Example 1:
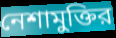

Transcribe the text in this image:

নেশামুক্তির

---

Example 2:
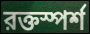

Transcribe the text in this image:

রক্তস্পর্শ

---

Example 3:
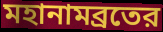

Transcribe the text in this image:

মহানামব্রতের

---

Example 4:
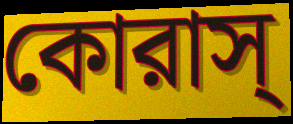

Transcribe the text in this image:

কোরাস্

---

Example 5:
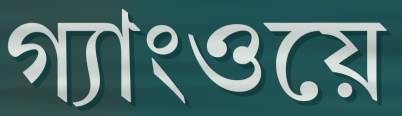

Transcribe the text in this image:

গ্যাংওয়ে